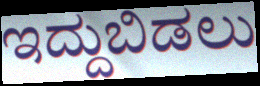
ಇದ್ದುಬಿಡಲು